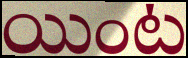
యింట